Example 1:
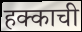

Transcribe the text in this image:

हक्काची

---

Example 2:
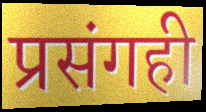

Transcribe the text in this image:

प्रसंगही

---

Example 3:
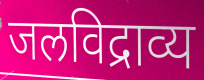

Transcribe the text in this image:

जलविद्राव्य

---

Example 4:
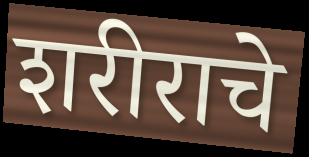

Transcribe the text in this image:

शरीराचे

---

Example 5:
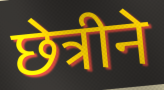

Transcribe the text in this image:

छेत्रीने